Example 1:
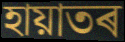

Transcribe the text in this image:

হায়াতৰ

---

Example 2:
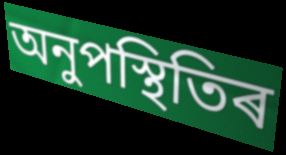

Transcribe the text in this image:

অনুপস্থিতিৰ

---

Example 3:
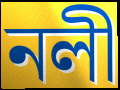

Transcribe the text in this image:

নলী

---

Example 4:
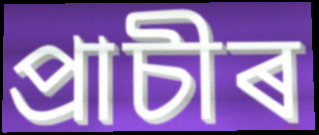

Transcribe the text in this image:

প্ৰাচীৰ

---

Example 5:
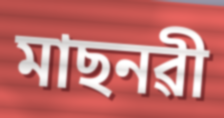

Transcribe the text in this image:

মাছনৱী